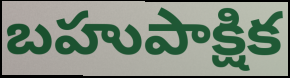
బహుపాక్షిక